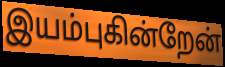
இயம்புகின்றேன்